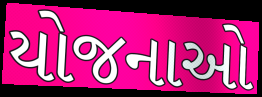
યોજનાઓ